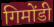
गिमोंडी